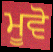
ਮੂਵੋ